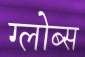
ग्लोब्स